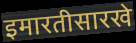
इमारतीसारखे